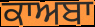
ਕਾਅਬਾ